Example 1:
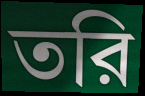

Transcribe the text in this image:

তরি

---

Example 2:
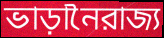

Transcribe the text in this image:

ভাড়ানৈরাজ্য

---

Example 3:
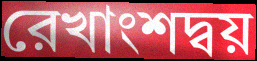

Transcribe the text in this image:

রেখাংশদ্বয়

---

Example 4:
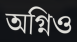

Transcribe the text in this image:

অগ্নিও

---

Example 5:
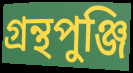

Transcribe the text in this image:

গ্রন্থপুঞ্জি